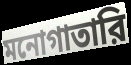
মনোগাতারি